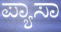
ಪ್ಯಾಸಾ